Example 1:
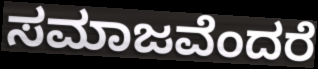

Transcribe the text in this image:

ಸಮಾಜವೆಂದರೆ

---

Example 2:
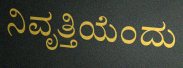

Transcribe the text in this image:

ನಿವೃತ್ತಿಯೆಂದು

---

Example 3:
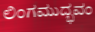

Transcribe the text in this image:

ಲಿಂಗಮುದ್ಭವಂ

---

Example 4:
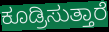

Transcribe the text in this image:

ಕೂಡ್ರಿಸುತ್ತಾರೆ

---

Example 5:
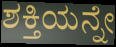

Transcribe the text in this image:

ಶಕ್ತಿಯನ್ನೇ